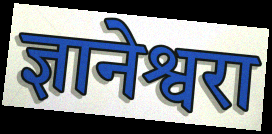
ज्ञानेश्वरा